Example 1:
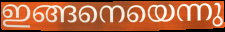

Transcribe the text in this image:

ഇങ്ങനെയെന്നു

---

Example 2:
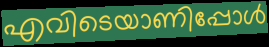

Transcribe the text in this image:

എവിടെയാണിപ്പോൾ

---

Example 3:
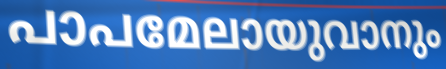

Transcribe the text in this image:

പാപമേലായുവാനും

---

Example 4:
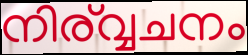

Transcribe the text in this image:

നിര്വ്വചനം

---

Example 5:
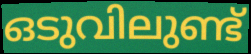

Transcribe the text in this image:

ഒടുവിലുണ്ട്